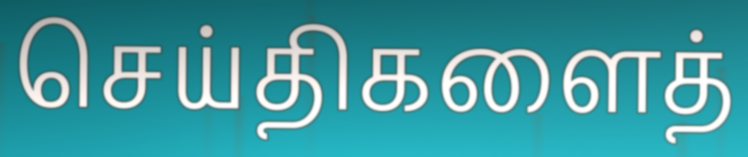
செய்திகளைத்